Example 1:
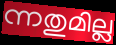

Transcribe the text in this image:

ന്നതുമില്ല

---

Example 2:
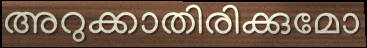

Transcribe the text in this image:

അറുക്കാതിരിക്കുമോ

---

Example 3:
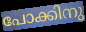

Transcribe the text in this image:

പോക്കിനു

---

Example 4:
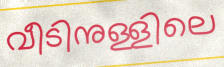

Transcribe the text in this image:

വീടിനുള്ളിലെ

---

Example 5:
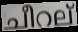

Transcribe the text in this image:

ചീറല്